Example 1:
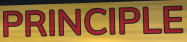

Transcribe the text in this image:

PRINCIPLE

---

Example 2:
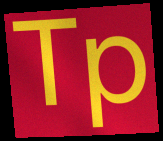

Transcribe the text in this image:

Tp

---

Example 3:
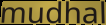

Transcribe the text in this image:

mudhal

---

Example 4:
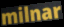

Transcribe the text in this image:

milnar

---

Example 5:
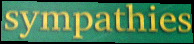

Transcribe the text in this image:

sympathies